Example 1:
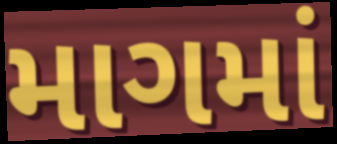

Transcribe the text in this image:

માગમાં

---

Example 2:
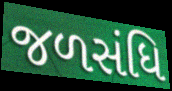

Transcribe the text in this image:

જળસંધિ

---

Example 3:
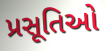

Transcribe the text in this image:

પ્રસૂતિઓ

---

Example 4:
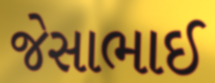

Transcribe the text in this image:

જેસાભાઈ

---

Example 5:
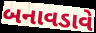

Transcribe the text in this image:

બનાવડાવે